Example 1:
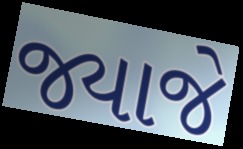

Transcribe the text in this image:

જ્યાજે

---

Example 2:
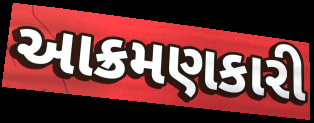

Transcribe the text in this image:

આક્રમણકારી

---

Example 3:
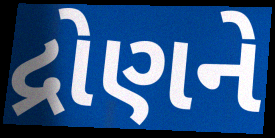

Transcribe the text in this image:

દ્રોણને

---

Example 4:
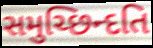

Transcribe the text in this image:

સમુચ્છિન્દતિ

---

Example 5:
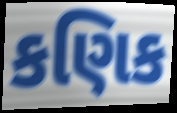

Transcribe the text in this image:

કણિક